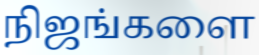
நிஜங்களை